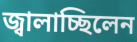
জ্বালাচ্ছিলেন